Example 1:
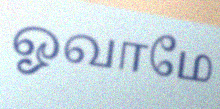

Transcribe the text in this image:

ஓவாமே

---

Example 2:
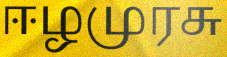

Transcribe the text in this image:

ஈழமுரசு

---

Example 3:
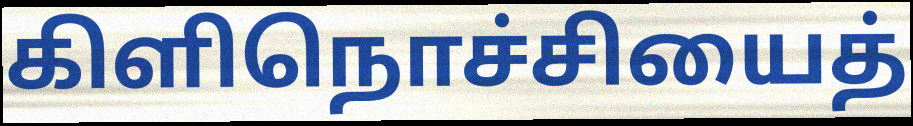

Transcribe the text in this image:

கிளிநொச்சியைத்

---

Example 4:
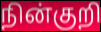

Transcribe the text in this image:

நின்குறி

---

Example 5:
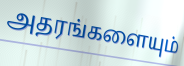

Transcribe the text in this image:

அதரங்களையும்